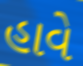
હાવે